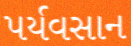
પર્યવસાન